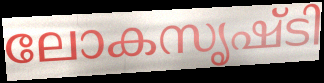
ലോകസൃഷ്ടി